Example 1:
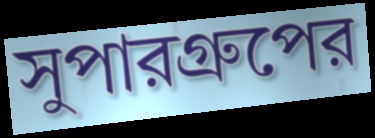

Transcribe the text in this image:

সুপারগ্রুপের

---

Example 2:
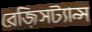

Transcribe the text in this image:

রেজ়িসট্যান্স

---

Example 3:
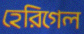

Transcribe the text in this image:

হেরিগেল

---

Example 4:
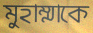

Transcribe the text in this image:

মুহাম্মাকে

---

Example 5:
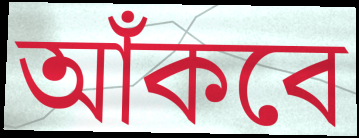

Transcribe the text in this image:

আঁকবে